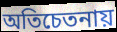
অতিচেতনায়